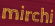
mirchi